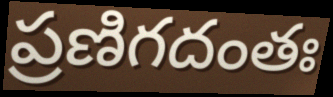
ప్రణిగదంతః